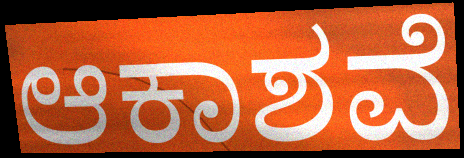
ಆಕಾಶವೆ